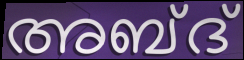
അബ്ദ്